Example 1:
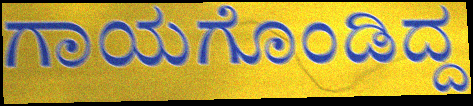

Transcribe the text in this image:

ಗಾಯಗೊಂಡಿದ್ದ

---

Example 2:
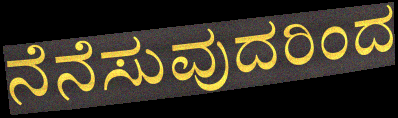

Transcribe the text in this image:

ನೆನೆಸುವುದರಿಂದ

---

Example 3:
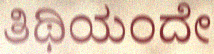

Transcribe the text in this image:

ತಿಥಿಯಂದೇ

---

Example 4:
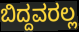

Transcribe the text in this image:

ಬಿದ್ದವರಲ್ಲ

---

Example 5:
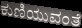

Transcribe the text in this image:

ಕುಣಿಯುವಂತೆ